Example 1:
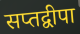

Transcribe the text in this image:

सप्तद्वीपा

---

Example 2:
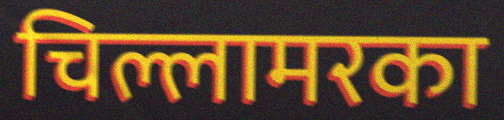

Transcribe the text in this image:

चिल्लामरका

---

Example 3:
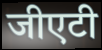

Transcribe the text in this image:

जीएटी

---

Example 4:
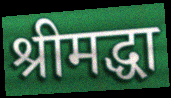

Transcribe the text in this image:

श्रीमद्धा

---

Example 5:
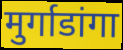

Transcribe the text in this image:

मुर्गाडांगा